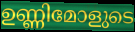
ഉണ്ണിമോളുടെ